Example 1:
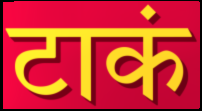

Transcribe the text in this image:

टाकं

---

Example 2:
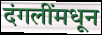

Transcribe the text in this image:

दंगलींमधून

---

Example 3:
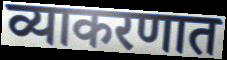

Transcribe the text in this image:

व्याकरणात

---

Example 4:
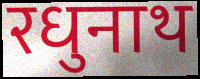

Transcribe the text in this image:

रधुनाथ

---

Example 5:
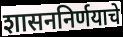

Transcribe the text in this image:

शासननिर्णयाचे